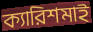
ক্যারিশমাই